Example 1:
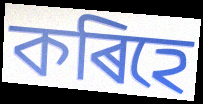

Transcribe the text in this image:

কৰিহে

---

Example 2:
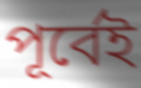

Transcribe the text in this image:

পূৰ্বেই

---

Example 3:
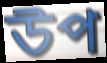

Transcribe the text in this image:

উপ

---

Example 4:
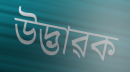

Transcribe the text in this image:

উদ্ভাৱক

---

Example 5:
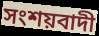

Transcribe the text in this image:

সংশয়বাদী